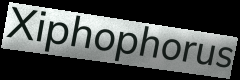
Xiphophorus